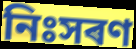
নিঃসৰণ